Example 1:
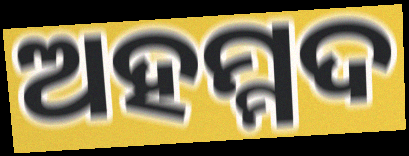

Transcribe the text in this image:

ଅହମ୍ମଦ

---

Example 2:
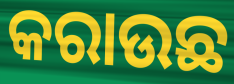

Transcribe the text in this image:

କରାଉଛ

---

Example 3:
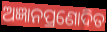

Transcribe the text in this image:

ଅଜ୍ଞାନପ୍ରଣୋଦିତ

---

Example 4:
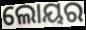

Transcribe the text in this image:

ଲୋୟର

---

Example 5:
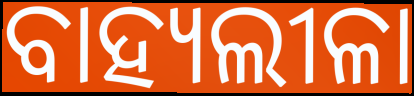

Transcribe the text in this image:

ବାହ୍ୟଲୀଳା